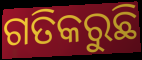
ଗତିକରୁଛି